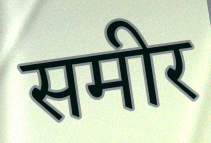
समीर